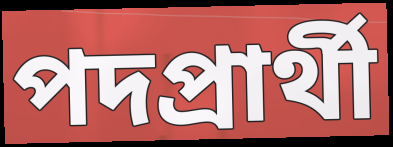
পদপ্রার্থী